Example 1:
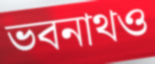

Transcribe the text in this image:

ভবনাথও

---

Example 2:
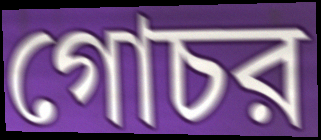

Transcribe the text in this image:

গোচর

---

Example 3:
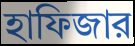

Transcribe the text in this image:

হাফিজার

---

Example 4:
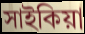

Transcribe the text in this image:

সাইকিয়া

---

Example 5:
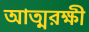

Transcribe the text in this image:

আত্মরক্ষী